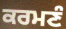
ਕਰਮਣੰ